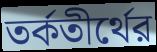
তর্কতীর্থের